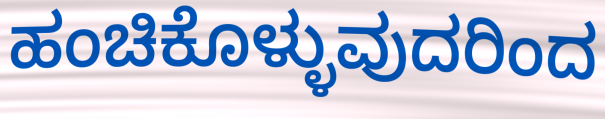
ಹಂಚಿಕೊಳ್ಳುವುದರಿಂದ